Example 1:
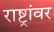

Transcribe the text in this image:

राष्ट्रांवर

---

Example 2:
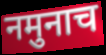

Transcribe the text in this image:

नमुनाच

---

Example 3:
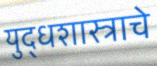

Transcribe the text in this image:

युद्धशास्त्राचे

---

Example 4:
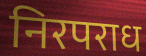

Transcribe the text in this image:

निरपराध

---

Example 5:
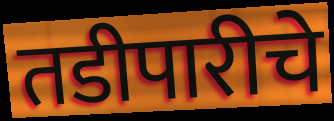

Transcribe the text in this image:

तडीपारीचे